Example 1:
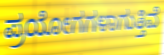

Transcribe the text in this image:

ಪ್ರಯೋಗಗಳಾಗುತ್ತಿವೆ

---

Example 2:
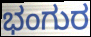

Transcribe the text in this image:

ಭಂಗುರ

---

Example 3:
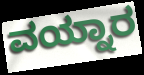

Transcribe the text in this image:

ವಯ್ನಾರ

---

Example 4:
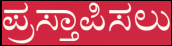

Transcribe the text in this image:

ಪ್ರಸ್ತಾಪಿಸಲು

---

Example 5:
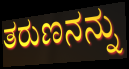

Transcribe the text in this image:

ತರುಣನನ್ನು